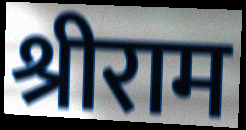
श्रीराम